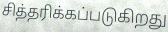
சித்தரிக்கப்படுகிறது